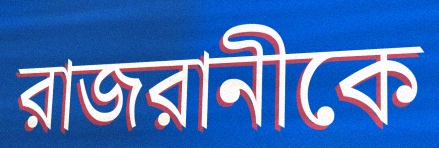
রাজরানীকে